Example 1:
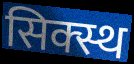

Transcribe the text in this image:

सिक्स्थ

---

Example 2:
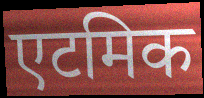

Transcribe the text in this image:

एटमिक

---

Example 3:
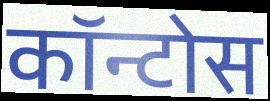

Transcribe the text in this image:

कॉन्टोस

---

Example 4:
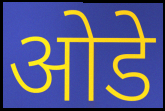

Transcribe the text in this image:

ओडे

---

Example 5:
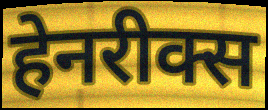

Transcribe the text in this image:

हेनरीक्स